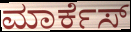
ಮಾರ್ಕೆಸ್